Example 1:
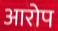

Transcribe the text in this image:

आरोप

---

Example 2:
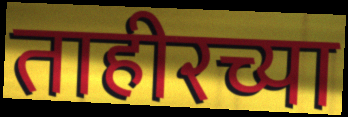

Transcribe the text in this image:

ताहीरच्या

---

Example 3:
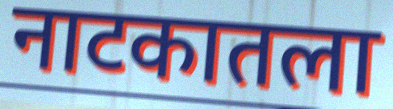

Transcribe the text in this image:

नाटकातला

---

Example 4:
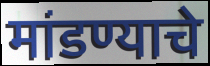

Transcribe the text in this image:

मांडण्याचे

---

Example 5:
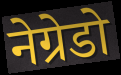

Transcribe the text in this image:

नेग्रेडो